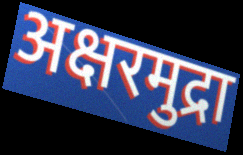
अक्षरमुद्रा